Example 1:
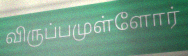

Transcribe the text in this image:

விருப்பமுள்ளோர்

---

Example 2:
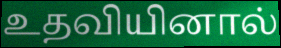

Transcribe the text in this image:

உதவியினால்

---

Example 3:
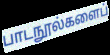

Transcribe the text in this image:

பாடநூல்களைப்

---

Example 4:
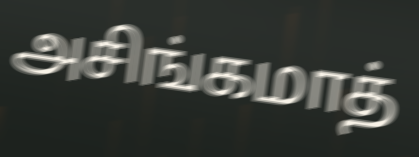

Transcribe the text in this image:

அசிங்கமாத்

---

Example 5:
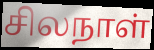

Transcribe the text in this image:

சிலநாள்